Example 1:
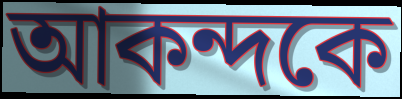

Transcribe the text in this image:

আকন্দকে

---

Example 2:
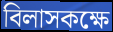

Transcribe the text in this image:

বিলাসকক্ষে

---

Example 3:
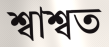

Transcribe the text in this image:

শ্বাশ্বত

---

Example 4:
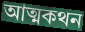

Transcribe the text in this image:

আত্মকথন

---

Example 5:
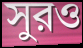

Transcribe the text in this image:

সুরও